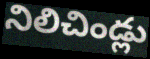
నిలిచిండ్లు